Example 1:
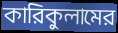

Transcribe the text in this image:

কারিকুলামের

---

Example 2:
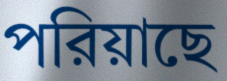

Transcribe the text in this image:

পরিয়াছে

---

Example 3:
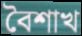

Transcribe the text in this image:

বৈশাখ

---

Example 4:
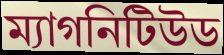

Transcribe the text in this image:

ম্যাগনিটিউড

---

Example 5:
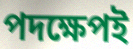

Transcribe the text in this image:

পদক্ষেপই